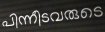
പിന്നീടവരുടെ